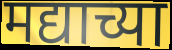
मद्याच्या